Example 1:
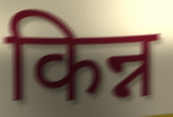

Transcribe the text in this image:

किन्न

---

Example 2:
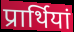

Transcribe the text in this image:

प्रार्थियां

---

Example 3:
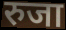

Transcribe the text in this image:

रुजा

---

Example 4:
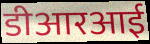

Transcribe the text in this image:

डीआरआई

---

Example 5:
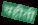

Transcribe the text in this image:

चहीती